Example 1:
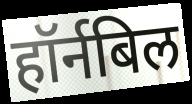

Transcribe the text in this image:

हॉर्नबिल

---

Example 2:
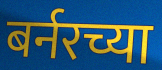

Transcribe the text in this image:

बर्नरच्या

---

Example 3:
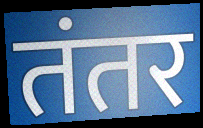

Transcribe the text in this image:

तंतर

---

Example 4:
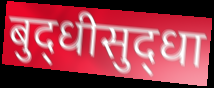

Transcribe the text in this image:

बुद्धीसुद्धा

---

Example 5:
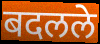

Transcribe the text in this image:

बदलले